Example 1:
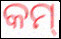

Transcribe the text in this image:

କମ୍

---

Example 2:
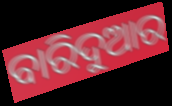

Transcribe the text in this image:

ବାରିଦୁଆର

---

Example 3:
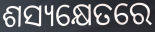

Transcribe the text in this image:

ଶସ୍ୟକ୍ଷେତରେ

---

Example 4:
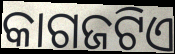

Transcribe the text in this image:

କାଗଜଟିଏ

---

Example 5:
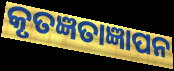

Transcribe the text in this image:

କୃତଜ୍ଞତାଜ୍ଞାପନ